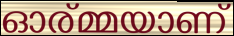
ഓര്മ്മയാണ്